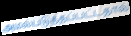
அமல்படுத்தப்பட்டதால்